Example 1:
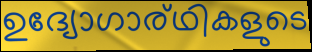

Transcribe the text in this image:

ഉദ്യോഗാര്ഥികളുടെ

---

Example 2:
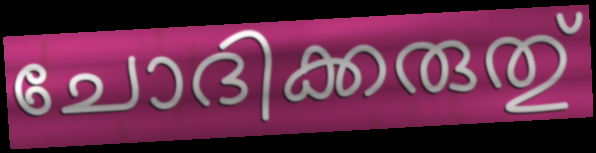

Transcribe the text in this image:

ചോദിക്കരുതു്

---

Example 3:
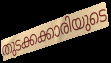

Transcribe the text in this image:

തുടക്കക്കാരിയുടെ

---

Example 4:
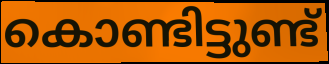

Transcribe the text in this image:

കൊണ്ടിട്ടുണ്ട്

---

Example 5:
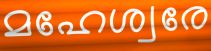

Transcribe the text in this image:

മഹേശ്വരേ